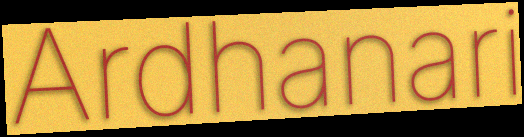
Ardhanari